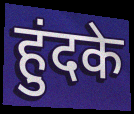
हुंदके